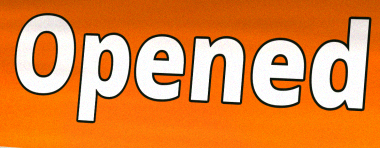
Opened